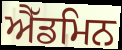
ਐੱਡਮਿਨ